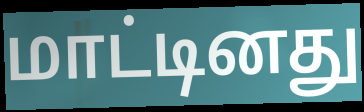
மாட்டினது